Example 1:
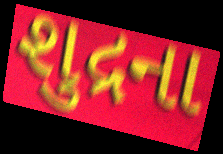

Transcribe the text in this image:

શુદ્રના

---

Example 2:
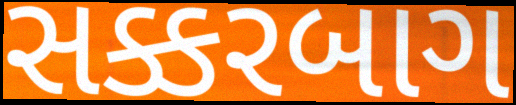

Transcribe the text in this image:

સક્કરબાગ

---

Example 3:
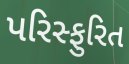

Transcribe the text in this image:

પરિસ્ફુરિત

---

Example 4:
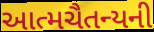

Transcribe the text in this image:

આત્મચૈતન્યની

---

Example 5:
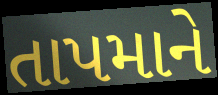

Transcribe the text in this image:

તાપમાને